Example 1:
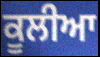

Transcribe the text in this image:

ਕੂਲੀਆ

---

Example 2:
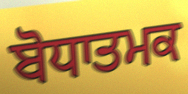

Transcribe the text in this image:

ਬੋਧਾਤਮਕ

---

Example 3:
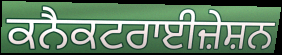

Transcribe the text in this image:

ਕਨੈਕਟਰਾਈਜ਼ੇਸ਼ਨ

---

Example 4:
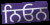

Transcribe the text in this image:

ਨਿਓਨ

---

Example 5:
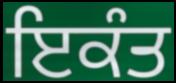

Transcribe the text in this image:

ਇਕੰਤ